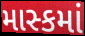
માસ્કમાં